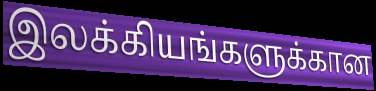
இலக்கியங்களுக்கான